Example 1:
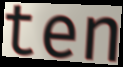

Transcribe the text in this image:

ten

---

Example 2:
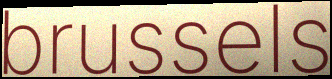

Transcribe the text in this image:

brussels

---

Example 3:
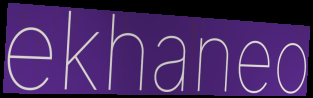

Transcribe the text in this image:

ekhaneo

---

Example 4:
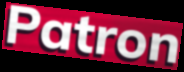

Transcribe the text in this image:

Patron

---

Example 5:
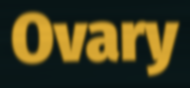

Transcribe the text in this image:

Ovary